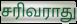
சரிவராது